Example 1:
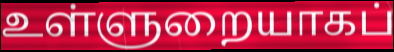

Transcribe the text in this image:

உள்ளுறையாகப்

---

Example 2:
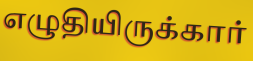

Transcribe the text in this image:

எழுதியிருக்கார்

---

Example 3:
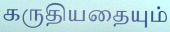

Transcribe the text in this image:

கருதியதையும்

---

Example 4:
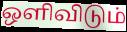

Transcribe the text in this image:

ஒளிவிடும்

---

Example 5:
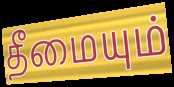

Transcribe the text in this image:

தீமையும்